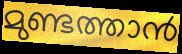
മുണ്ടത്താൻ